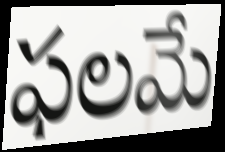
ఫలమే